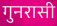
गुनरासी